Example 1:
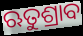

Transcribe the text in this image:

ଋତୁଶ୍ରାବ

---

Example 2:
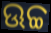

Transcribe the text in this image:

ଊଚ୍ଚ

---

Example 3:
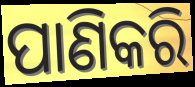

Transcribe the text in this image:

ପାଣିକରି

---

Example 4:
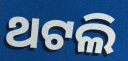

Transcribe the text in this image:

ଥଟଲି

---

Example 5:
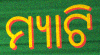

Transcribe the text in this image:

ମ୍ୟାଟି